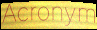
Acronym